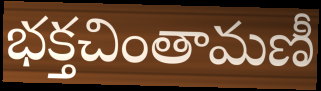
భక్తచింతామణీ